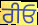
ਰੀਓ